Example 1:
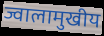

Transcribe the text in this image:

ज्वालामुखीय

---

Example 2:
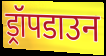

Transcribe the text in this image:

ड्रॉपडाउन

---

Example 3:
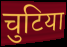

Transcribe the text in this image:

चुटिया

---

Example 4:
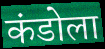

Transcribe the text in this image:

कंडोला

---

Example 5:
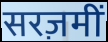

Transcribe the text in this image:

सरज़मीं